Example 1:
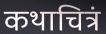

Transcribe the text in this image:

कथाचित्रं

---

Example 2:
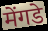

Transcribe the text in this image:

मेंगडे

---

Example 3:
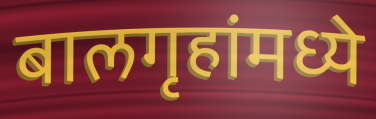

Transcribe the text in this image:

बालगृहांमध्ये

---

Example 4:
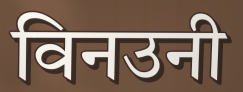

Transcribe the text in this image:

विनउनी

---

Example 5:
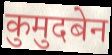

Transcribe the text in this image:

कुमुदबेन